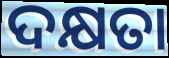
ଦକ୍ଷତା